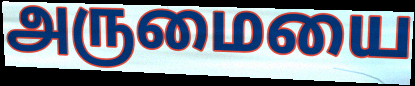
அருமையை